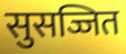
सुसज्जित